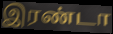
இரண்டா